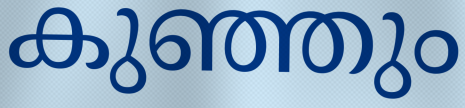
കുഞ്ഞും